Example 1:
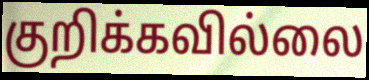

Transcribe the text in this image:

குறிக்கவில்லை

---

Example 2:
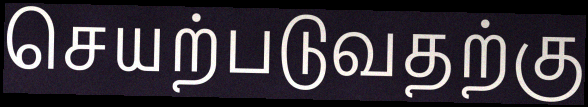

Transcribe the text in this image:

செயற்படுவதற்கு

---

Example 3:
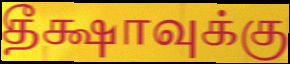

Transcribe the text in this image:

தீக்ஷாவுக்கு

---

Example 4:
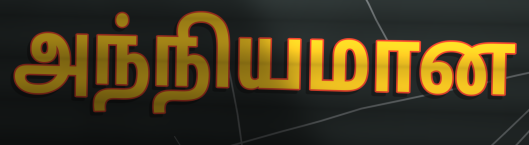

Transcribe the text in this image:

அந்நியமான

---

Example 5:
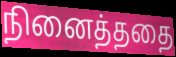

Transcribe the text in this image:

நினைத்ததை